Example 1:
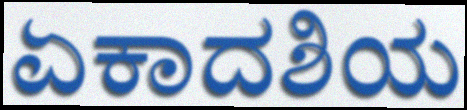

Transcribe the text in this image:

ಏಕಾದಶಿಯ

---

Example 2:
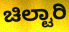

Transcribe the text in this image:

ಚಿಲ್ಟಾರಿ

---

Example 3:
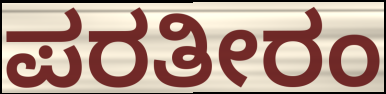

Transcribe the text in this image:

ಪರತೀರಂ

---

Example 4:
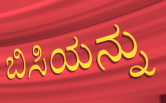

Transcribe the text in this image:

ಬಿಸಿಯನ್ನು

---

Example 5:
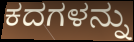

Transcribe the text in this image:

ಕದಗಳನ್ನು